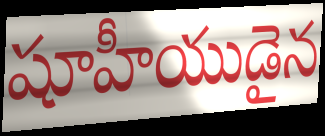
షూహీయుడైన